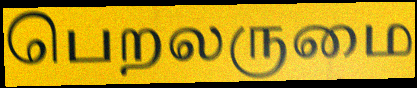
பெறலருமை